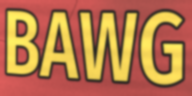
BAWG